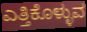
ಎತ್ತಿಕೊಳ್ಳುವ